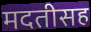
मदतीसह